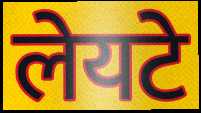
लेयटे